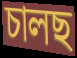
চালছ